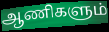
ஆணிகளும்